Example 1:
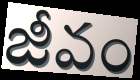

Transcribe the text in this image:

జీవం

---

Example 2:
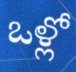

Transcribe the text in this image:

ఒళ్లో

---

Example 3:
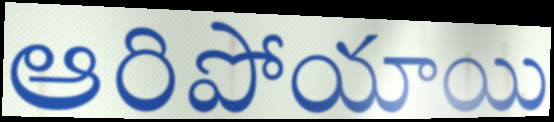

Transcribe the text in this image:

ఆరిపోయాయి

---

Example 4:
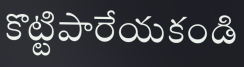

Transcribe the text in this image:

కొట్టిపారేయకండి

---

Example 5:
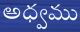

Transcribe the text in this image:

అధ్వము